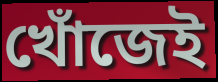
খোঁজেই